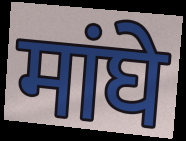
मांघे